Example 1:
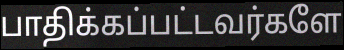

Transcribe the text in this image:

பாதிக்கப்பட்டவர்களே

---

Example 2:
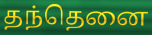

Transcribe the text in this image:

தந்தெனை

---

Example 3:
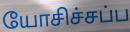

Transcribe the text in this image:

யோசிச்சப்ப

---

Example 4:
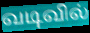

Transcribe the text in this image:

வடிவில்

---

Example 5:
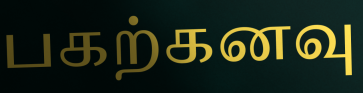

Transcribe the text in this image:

பகற்கனவு